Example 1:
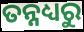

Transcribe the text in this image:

ତନ୍ନଧ୍ୟରୁ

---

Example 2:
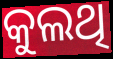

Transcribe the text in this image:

କୁଲଥି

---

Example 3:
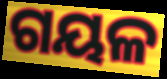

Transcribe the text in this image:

ଗୟଳ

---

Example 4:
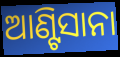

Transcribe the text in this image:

ଆଣ୍ଟିସାନା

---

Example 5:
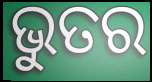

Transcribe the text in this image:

ଭୁତର